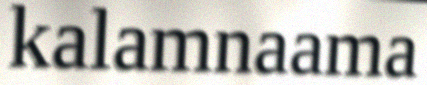
kalamnaama